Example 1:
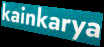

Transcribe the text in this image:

kainkarya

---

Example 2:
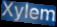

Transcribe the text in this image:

Xylem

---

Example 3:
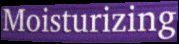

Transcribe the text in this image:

Moisturizing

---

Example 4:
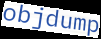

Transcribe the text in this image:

objdump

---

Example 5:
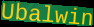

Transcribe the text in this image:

Ubalwin